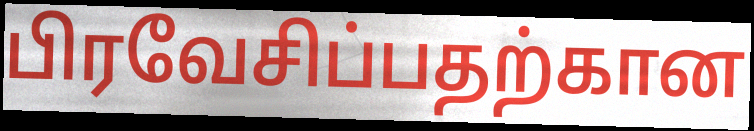
பிரவேசிப்பதற்கான